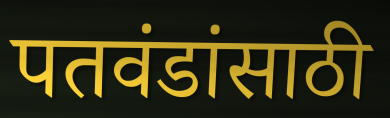
पतवंडांसाठी